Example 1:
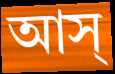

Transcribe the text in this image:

আস্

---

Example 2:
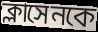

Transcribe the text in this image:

ক্লাসেনকে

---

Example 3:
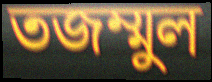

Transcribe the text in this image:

তজম্মুল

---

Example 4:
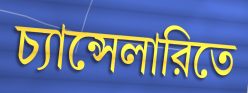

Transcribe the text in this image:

চ্যান্সেলারিতে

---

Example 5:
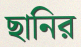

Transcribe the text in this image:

ছানির